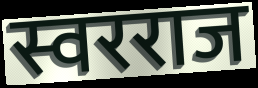
स्वरराज